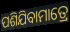
ପଶିଯିବାମାତ୍ରେ